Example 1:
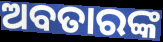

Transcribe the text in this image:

ଅବତାରଙ୍କ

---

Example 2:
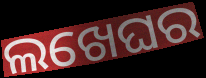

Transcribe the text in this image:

ଲଖେଘର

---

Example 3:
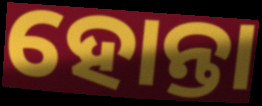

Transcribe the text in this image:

ହୋନ୍ତା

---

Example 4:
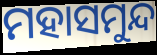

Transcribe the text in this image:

ମହାସମୁନ୍ଦ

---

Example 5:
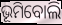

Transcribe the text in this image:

ଭୂମିବୋଲି